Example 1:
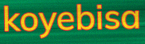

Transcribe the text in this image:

koyebisa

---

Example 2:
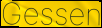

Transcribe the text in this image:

Gessen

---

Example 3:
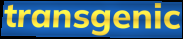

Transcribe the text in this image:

transgenic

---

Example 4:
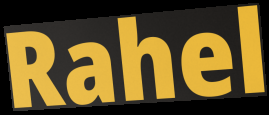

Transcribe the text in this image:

Rahel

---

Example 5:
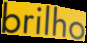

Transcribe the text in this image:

brilho